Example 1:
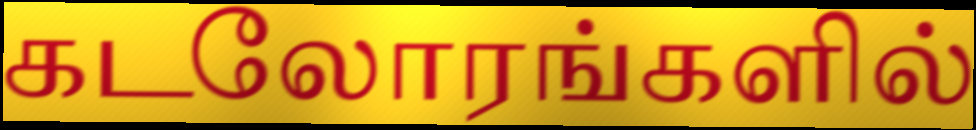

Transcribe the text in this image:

கடலோரங்களில்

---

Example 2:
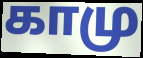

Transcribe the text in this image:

காமு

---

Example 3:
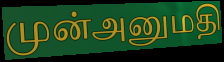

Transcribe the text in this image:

முன்அனுமதி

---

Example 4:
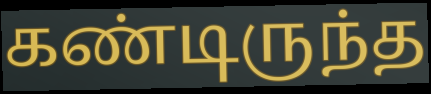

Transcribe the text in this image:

கண்டிருந்த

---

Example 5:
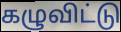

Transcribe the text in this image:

கழுவிட்டு